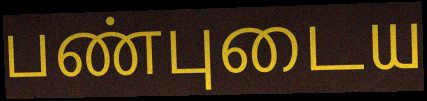
பண்புடைய